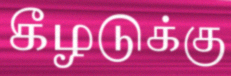
கீழடுக்கு